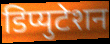
डिप्युटेशन